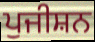
ਪੁਜੀਸ਼ਨ